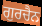
ਗੁਰਚੈਨ